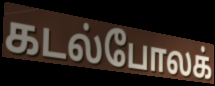
கடல்போலக்